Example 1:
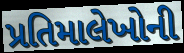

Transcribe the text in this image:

પ્રતિમાલેખોની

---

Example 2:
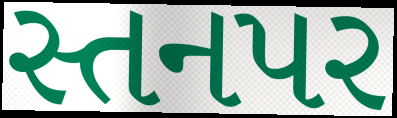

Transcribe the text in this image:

સ્તનપર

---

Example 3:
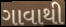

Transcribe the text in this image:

ગાવાથી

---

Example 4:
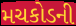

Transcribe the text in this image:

મચકોડની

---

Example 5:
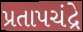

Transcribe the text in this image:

પ્રતાપચંદ્રે